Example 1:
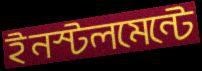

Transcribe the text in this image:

ইনস্টলমেন্টে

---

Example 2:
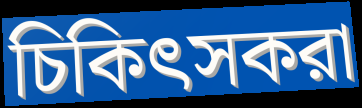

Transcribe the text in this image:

চিকিৎসকরা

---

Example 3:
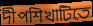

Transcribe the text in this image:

দীপশিখাটিতে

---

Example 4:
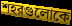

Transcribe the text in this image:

শহরগুলোকে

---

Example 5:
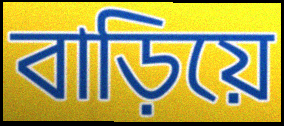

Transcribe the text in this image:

বাড়িয়ে